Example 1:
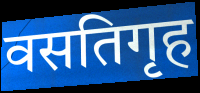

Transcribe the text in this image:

वसतिगृह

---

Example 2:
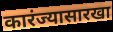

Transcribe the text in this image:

कारंज्यासारखा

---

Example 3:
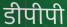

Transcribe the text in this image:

डीपीपी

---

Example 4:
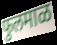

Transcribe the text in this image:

फुलमाळ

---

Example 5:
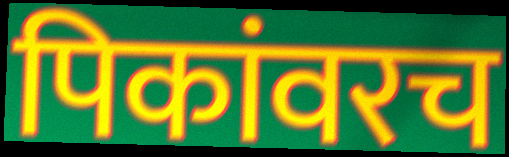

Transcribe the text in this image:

पिकांवरच